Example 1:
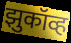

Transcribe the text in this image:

झुकॉव्ह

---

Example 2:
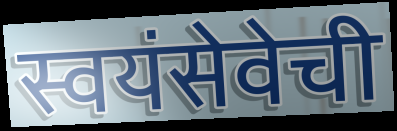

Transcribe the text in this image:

स्वयंसेवेची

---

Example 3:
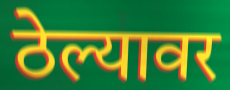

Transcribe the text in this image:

ठेल्यावर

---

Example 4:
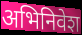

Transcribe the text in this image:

अभिनिवेश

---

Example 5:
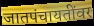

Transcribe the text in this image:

जातपंचायतींवर